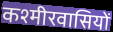
कश्मीरवासियों